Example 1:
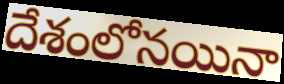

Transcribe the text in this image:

దేశంలోనయినా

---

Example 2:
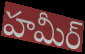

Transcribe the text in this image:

హమీర్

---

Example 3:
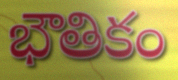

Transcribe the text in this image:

భౌతికం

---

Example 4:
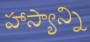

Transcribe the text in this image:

హాస్యాన్ని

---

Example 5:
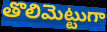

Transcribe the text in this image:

తొలిమెట్టుగా